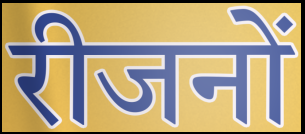
रीजनों